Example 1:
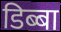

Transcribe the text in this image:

डिब्बा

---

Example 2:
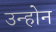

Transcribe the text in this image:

उन्होन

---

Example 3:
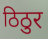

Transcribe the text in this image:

ठिठुर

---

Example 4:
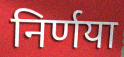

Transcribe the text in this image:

निर्णया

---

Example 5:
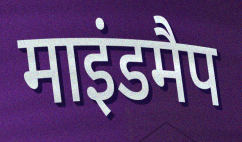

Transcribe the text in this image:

माइंडमैप